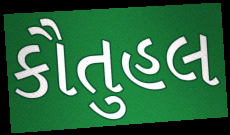
કૌતુહલ